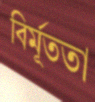
বির্মূততা